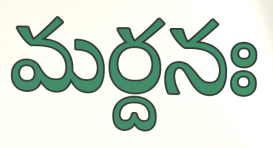
మర్దనః